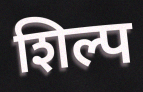
शिल्प